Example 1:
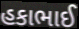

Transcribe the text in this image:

હકાભાઈ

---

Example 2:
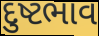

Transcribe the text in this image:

દુષ્ટભાવ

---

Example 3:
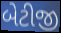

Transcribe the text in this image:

બેટીજી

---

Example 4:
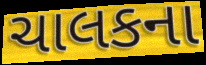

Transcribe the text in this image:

ચાલકના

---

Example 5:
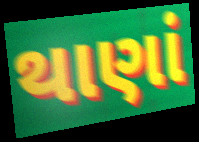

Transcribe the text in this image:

થાણાં